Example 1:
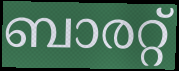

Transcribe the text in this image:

ബാരറ്റ്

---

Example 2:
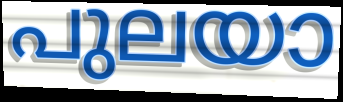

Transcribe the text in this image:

പുലയാ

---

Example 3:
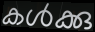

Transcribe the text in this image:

കൾക്കു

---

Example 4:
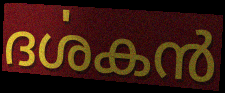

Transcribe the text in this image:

ദൎശകൻ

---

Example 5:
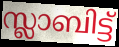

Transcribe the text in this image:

സ്ലാബിട്ട്